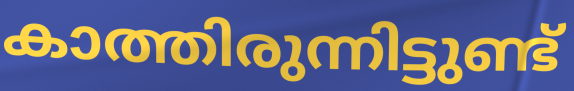
കാത്തിരുന്നിട്ടുണ്ട്